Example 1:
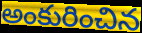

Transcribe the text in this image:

అంకురించిన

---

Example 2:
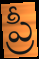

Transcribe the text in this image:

ప్రీ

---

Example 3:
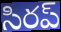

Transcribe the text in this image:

సిరప్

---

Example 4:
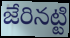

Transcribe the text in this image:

జేరినట్టి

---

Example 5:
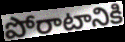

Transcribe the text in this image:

పోరాటానికి